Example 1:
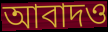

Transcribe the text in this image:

আবাদও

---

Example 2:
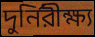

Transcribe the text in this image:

দুর্নিরীক্ষ্য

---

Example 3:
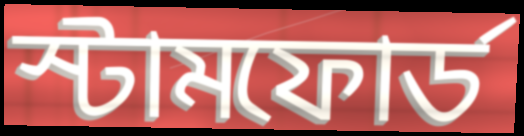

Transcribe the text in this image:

স্টামফোর্ড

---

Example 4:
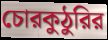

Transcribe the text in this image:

চোরকুঠুরির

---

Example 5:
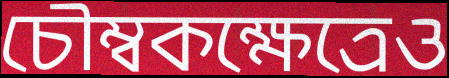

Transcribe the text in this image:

চৌম্বকক্ষেত্রেও